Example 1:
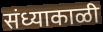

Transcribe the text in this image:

संध्याकाळी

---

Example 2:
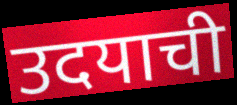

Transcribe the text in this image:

उदयाची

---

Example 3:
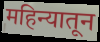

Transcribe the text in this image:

महिन्यातून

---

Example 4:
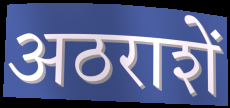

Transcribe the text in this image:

अठराशें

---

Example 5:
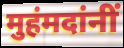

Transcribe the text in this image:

मुहंमदांनीं